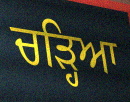
ਚੜ੍ਹਿਆ